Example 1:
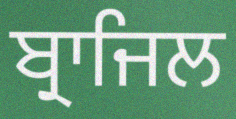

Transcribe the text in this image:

ਬ੍ਰਾਜਿਲ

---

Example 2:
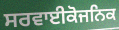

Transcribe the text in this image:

ਸਰਵਾਈਕੋਜਨਿਕ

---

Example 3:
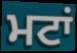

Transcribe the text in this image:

ਮਟਾਂ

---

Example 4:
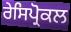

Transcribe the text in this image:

ਰੇਸਿਪ੍ਰੋਕਲ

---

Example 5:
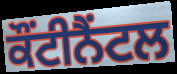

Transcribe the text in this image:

ਕੌਂਟੀਨੈਂਟਲ